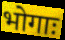
भोगाः